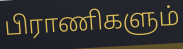
பிராணிகளும்